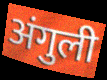
अंगुली